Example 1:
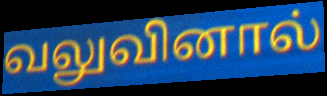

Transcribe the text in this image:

வலுவினால்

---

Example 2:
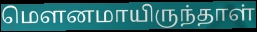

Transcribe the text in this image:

மௌனமாயிருந்தாள்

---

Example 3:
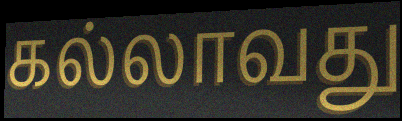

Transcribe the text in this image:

கல்லாவது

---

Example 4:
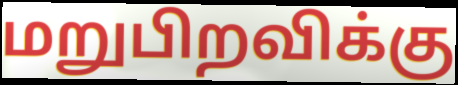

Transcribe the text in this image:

மறுபிறவிக்கு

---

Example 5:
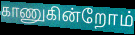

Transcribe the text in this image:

காணுகின்றோம்